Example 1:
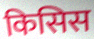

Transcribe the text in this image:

किसिस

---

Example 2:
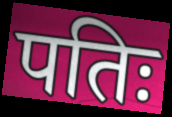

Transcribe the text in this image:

पतिः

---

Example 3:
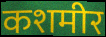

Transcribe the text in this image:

कशमीर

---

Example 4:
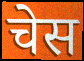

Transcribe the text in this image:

चेस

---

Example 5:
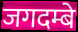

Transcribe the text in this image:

जगदम्बे